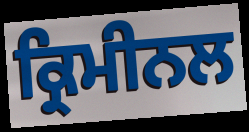
ਕ੍ਰਿਮੀਨਲ